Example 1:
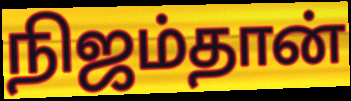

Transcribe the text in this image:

நிஜம்தான்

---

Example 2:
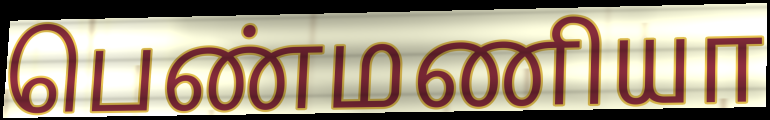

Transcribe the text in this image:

பெண்மணியா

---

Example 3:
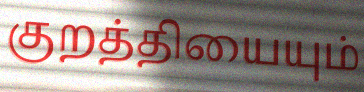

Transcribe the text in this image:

குறத்தியையும்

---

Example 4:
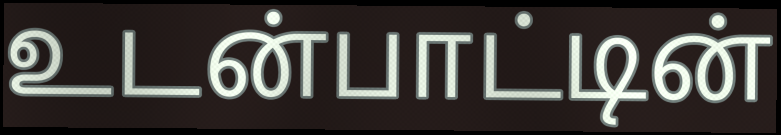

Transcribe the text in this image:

உடன்பாட்டின்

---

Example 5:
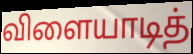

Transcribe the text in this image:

விளையாடித்